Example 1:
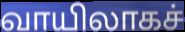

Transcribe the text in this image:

வாயிலாகச்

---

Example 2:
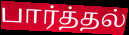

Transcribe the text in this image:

பார்த்தல்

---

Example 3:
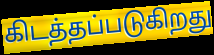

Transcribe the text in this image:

கிடத்தப்படுகிறது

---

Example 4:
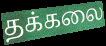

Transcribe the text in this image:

தக்கலை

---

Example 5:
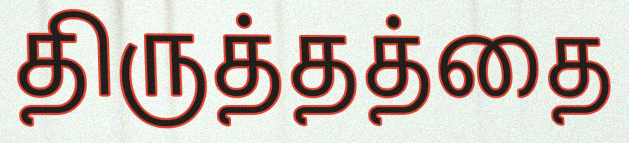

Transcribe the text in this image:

திருத்தத்தை